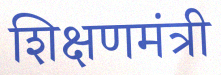
शिक्षणमंत्री